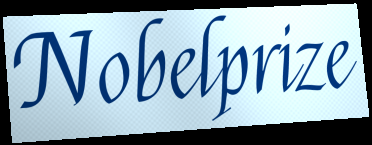
Nobelprize